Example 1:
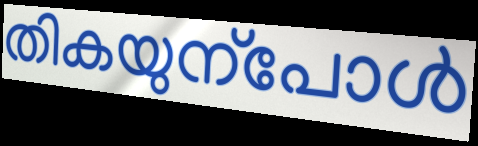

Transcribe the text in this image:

തികയുന്പോൾ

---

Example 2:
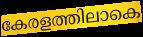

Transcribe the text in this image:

കേരളത്തിലാകെ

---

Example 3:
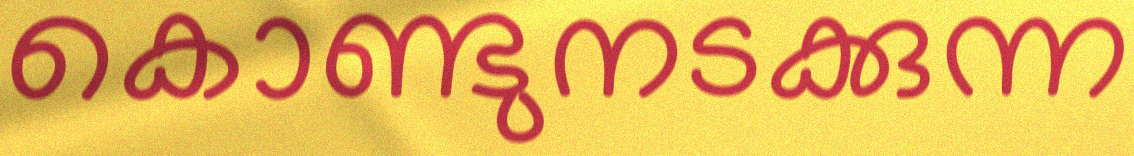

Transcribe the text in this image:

കൊണ്ടുനടക്കുന്ന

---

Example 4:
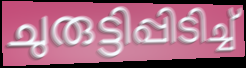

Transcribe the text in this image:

ചുരുട്ടിപ്പിടിച്ച്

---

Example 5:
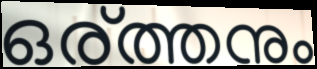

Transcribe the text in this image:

ഒര്ത്തനും